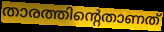
താരത്തിന്റെതാണത്